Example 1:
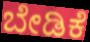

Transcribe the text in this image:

ಬೇಡಿಕೆ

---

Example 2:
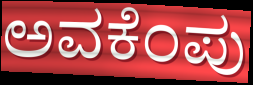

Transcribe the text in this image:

ಅವಕೆಂಪು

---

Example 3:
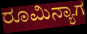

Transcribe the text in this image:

ರೂಮಿನ್ಯಾಗ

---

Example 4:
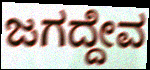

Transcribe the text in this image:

ಜಗದ್ದೇವ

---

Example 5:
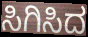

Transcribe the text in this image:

ಸಿಗಿಸಿದ